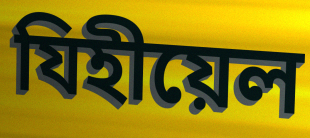
যিহীয়েল